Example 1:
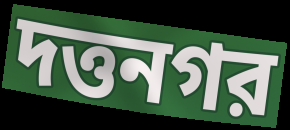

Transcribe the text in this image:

দত্তনগর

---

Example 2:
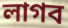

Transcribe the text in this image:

লাগব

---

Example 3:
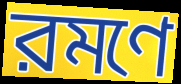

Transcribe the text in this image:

রমণে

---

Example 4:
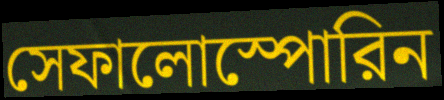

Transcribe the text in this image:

সেফালোস্পোরিন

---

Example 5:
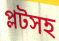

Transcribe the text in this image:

প্লটসহ